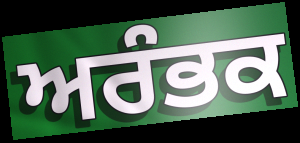
ਅਰੰਭਕ